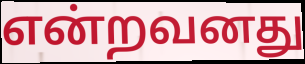
என்றவனது